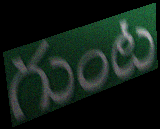
గుంట